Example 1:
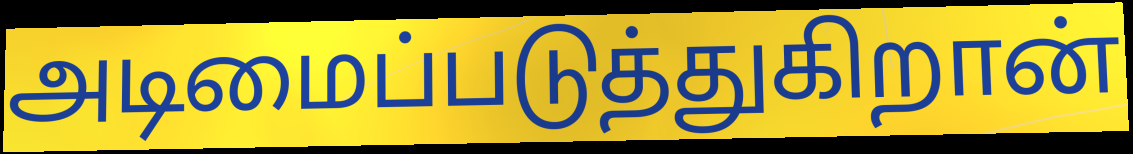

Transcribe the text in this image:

அடிமைப்படுத்துகிறான்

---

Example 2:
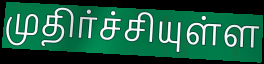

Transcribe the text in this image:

முதிர்ச்சியுள்ள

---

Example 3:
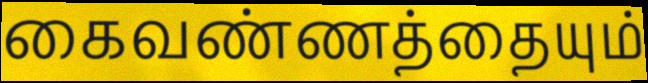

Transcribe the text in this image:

கைவண்ணத்தையும்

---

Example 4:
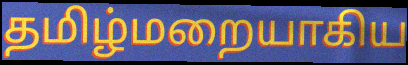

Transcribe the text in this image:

தமிழ்மறையாகிய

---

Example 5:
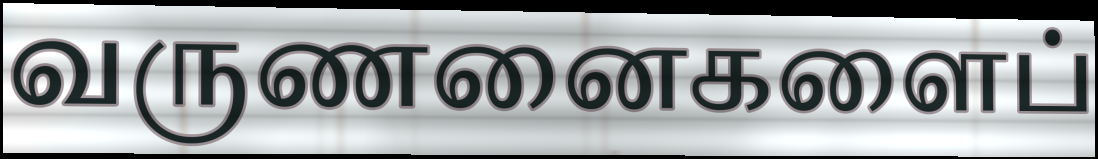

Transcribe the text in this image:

வருணனைகளைப்